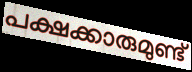
പക്ഷക്കാരുമുണ്ട്